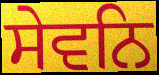
ਸੇਵਨਿ